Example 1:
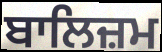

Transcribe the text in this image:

ਬਾਲਿਜ਼ਮ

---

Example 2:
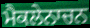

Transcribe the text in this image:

ਮੈਕਲੇਨਾਚਨ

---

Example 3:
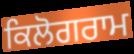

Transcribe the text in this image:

ਕਿਲੋਗਰਾਮ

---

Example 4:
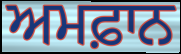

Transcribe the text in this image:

ਅਮਫ਼ਾਨ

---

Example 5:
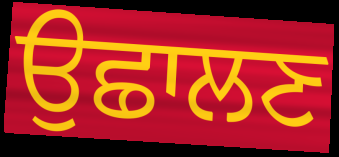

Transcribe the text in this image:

ਉਛਾਲਣ